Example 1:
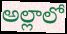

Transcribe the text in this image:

అల్లాలో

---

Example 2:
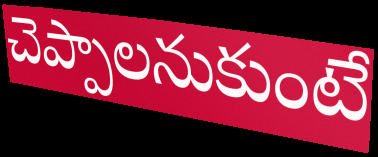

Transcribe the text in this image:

చెప్పాలనుకుంటే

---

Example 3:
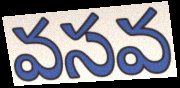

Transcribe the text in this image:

వసవ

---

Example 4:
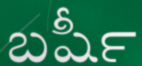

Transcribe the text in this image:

బషీర్‍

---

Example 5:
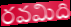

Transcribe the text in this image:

రవమిది